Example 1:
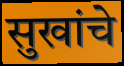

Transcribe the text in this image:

सुखांचे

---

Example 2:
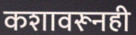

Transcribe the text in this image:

कशावरूनही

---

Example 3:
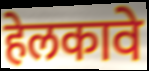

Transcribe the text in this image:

हेलकावे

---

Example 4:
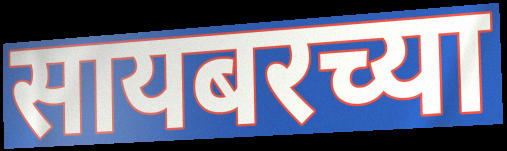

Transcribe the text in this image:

सायबरच्या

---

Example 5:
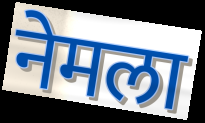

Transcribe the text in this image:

नेमला